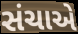
સંચાએ